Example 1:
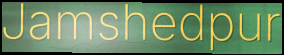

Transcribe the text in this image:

Jamshedpur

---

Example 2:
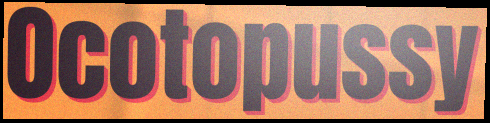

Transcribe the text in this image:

Ocotopussy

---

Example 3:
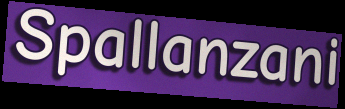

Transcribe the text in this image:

Spallanzani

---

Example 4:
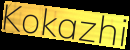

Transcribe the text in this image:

Kokazhi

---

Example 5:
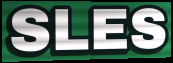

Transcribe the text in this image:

SLES